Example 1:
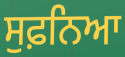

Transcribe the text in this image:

ਸੁਫ਼ਨਿਆ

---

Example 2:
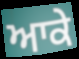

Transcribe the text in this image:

ਆਕੇ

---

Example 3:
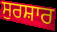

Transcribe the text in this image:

ਸੁਰਸ਼ਾਰ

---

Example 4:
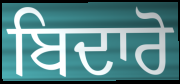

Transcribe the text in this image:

ਬਿਦਾਰੋ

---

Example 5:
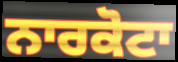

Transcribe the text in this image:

ਨਾਰਕੋਟਾ